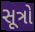
સૂત્રો